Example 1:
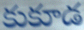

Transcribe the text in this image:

కుకూడ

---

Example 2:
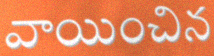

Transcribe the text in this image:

వాయించిన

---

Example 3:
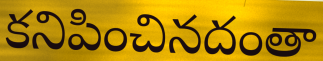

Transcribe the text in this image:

కనిపించినదంతా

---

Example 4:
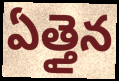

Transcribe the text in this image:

ఏత్తైన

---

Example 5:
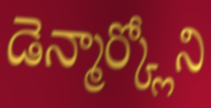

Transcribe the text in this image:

డెన్మార్క్లోని